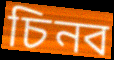
চিনব